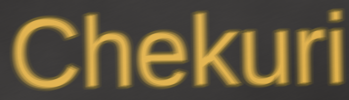
Chekuri